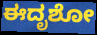
ಈದೃಶೋ